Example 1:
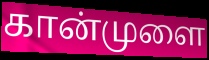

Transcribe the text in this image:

கான்முளை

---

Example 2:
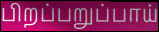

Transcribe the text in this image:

பிறப்பறுப்பாய்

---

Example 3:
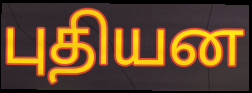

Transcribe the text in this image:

புதியன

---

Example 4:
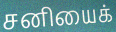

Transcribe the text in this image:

சனியைக்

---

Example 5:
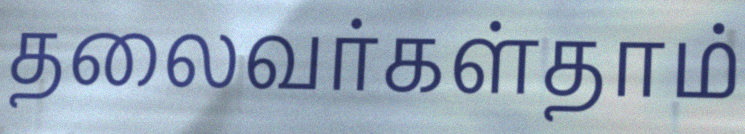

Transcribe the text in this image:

தலைவர்கள்தாம்